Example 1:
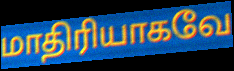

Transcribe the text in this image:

மாதிரியாகவே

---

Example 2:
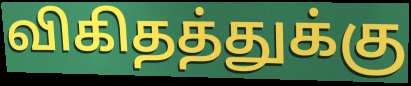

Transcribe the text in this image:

விகிதத்துக்கு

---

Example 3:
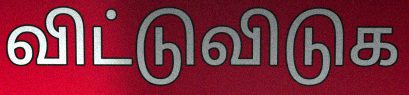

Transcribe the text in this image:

விட்டுவிடுக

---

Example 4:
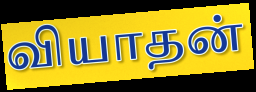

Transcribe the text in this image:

வியாதன்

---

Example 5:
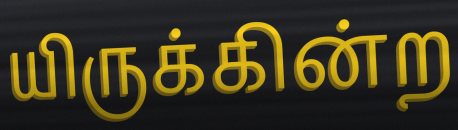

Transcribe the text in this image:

யிருக்கின்ற